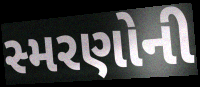
સ્મરણોની